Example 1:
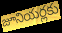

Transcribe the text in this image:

జూనియర్లకు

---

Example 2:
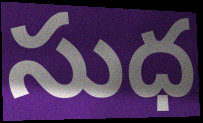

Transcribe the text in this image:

సుధ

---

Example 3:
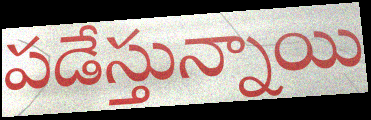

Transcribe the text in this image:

పడేస్తున్నాయి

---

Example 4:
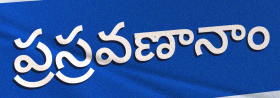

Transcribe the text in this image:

ప్రస్రవణానాం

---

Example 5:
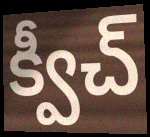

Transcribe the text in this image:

క్వీచ్